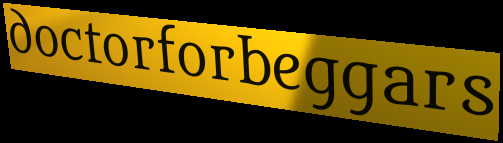
doctorforbeggars